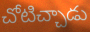
చోటిచ్చాడు